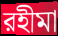
রহীমা